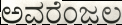
ಅವರೆಂಜಲ